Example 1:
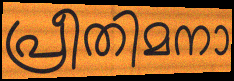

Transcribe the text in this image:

പ്രീതിമനാ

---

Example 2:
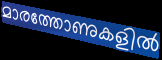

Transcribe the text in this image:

മാരത്തോണുകളിൽ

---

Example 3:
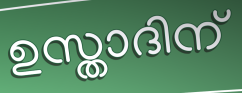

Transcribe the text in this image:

ഉസ്താദിന്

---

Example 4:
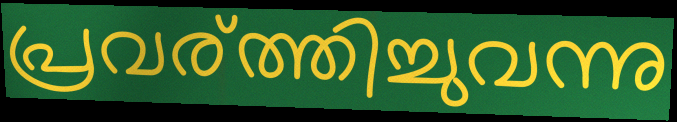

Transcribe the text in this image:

പ്രവര്ത്തിച്ചുവന്നു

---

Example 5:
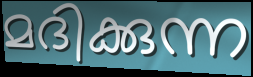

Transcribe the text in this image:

മദിക്കുന്ന